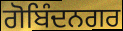
ਗੋਬਿੰਦਨਗਰ